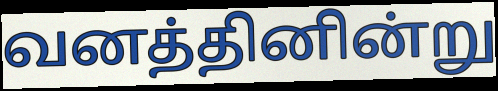
வனத்தினின்று